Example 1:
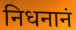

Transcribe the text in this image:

निधनानं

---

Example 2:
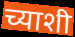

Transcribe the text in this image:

च्याशी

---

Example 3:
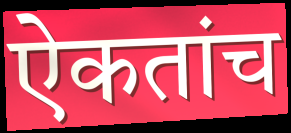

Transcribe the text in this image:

ऐकतांच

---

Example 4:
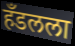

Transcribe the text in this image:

हँडलला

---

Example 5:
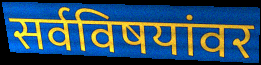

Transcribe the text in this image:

सर्वविषयांवर